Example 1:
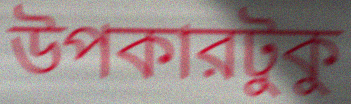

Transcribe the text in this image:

উপকারটুকু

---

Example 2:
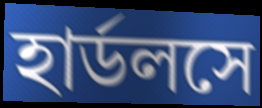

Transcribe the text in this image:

হার্ডলসে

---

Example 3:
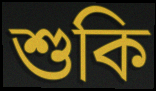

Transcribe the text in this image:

শুকি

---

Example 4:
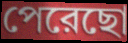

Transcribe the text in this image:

পেরেছো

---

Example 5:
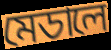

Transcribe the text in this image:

মেডালে